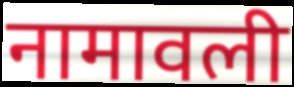
नामावली